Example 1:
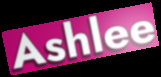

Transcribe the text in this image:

Ashlee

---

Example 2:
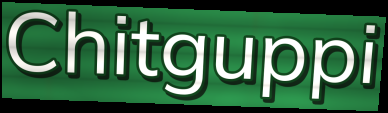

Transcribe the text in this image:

Chitguppi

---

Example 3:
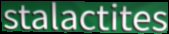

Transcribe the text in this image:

stalactites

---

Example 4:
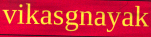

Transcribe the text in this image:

vikasgnayak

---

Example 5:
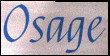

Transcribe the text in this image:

Osage